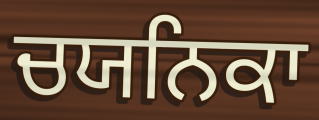
ਚਯਨਿਕਾ